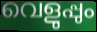
വെളുപ്പും